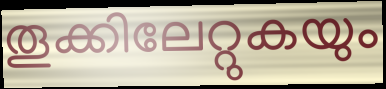
തൂക്കിലേറ്റുകയും